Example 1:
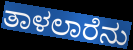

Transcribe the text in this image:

ತಾಳಲಾರೆನು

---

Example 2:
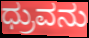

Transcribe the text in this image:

ಧ್ರುವನು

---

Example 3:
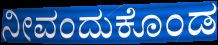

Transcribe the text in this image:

ನೀವಂದುಕೊಂಡ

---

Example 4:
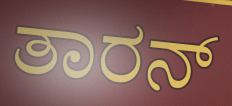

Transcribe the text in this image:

ತಾರನ್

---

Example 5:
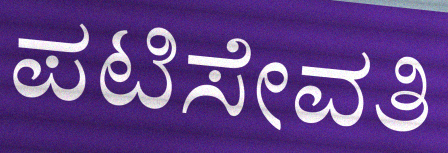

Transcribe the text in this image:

ಪಟಿಸೇವತಿ